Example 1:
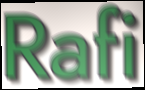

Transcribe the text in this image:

Rafi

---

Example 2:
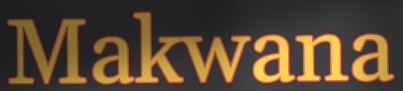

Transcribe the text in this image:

Makwana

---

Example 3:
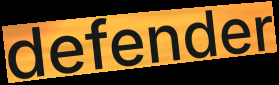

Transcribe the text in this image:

defender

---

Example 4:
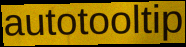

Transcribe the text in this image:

autotooltip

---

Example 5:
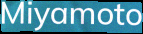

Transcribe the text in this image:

Miyamoto